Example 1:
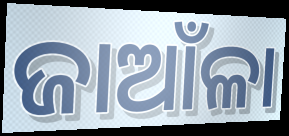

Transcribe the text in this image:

ଜାଆଁଳା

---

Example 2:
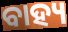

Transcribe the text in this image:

ବାହ୍ୟ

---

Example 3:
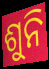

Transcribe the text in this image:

ଶୁନି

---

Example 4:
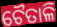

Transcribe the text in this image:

ଚୈତାଳି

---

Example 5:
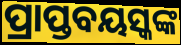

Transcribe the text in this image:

ପ୍ରାପ୍ତବୟସ୍କଙ୍କ